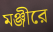
মঞ্জীরে